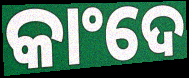
କାଂଦେ